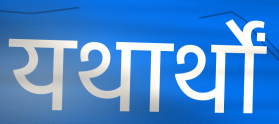
यथार्थों